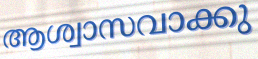
ആശ്വാസവാക്കു